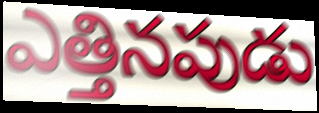
ఎత్తినపుడు